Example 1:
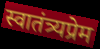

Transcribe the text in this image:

स्वातंत्र्यप्रेम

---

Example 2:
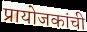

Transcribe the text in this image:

प्रायोजकांची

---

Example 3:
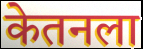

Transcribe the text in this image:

केतनला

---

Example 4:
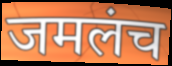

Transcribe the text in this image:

जमलंच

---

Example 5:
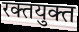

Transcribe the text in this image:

रक्तयुक्त